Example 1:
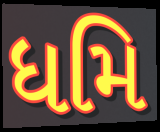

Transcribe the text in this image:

ધમિ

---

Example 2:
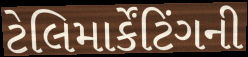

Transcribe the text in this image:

ટેલિમાર્કેંટિંગની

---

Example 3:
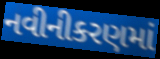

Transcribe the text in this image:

નવીનીકરણમાં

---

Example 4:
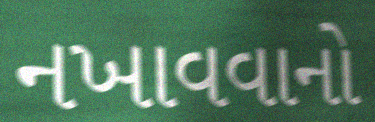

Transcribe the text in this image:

નખાવવાનો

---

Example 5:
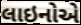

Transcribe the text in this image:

લાઇનોએ